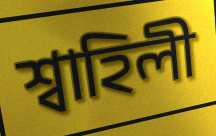
শ্বাহিলী